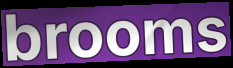
brooms